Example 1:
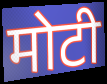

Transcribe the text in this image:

मोटी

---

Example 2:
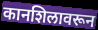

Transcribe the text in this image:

कानशिलावरून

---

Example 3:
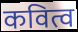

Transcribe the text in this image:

कवित्व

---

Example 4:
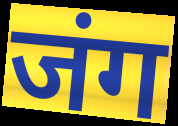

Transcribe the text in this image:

जंग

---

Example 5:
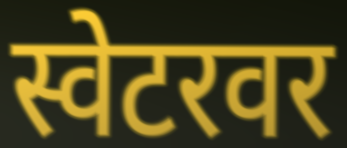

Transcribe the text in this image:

स्वेटरवर